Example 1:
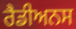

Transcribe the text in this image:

ਰੈਡੀਅਨਸ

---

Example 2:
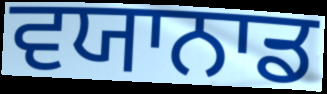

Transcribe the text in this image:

ਵਯਾਨਾਡ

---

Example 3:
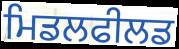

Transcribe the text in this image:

ਮਿਡਲਫੀਲਡ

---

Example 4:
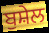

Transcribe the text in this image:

ਬੁਸ਼ੇਲ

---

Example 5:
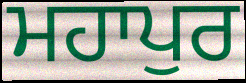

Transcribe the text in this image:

ਮਹਾਪੁਰ